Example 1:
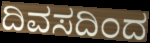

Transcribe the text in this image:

ದಿವಸದಿಂದ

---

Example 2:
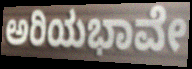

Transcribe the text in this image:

ಅರಿಯಭಾವೇ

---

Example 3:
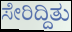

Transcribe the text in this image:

ಸೇರಿದ್ದಿತು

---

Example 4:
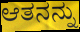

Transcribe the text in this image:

ಆತನನ್ನು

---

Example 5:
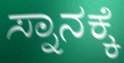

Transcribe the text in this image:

ಸ್ನಾನಕ್ಕೆ